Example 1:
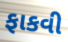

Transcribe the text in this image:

ફાકવી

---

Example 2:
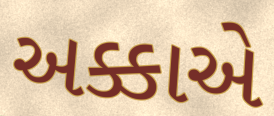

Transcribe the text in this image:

અક્કાએ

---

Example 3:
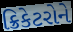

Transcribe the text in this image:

ક્રિકેટરોને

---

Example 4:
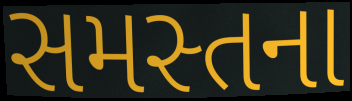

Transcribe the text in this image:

સમસ્તના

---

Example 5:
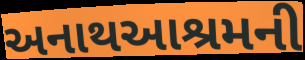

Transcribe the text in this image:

અનાથઆશ્રમની